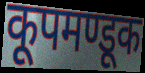
कूपमण्डूक